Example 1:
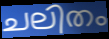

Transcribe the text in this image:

ചലിതം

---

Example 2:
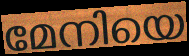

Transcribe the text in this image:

മേനിയെ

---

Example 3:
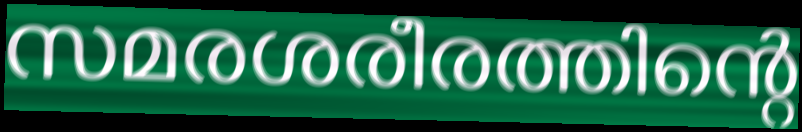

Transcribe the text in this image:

സമരശരീരത്തിന്റെ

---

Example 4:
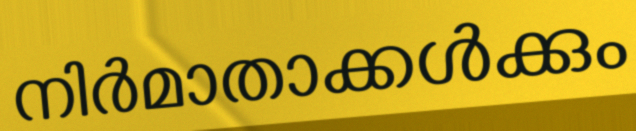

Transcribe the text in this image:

നിർമാതാക്കൾക്കും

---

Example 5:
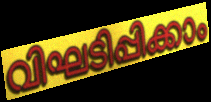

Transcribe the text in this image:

വിഘടിപ്പിക്കാം